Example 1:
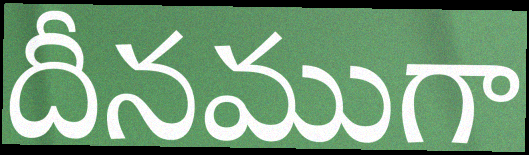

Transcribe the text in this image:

దీనముగా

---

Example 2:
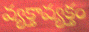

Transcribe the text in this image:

వ్యక్తావ్యక్తం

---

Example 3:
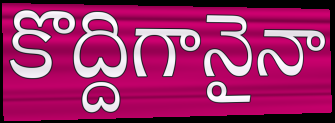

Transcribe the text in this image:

కొద్దిగానైనా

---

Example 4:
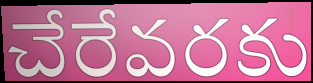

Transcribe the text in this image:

చేరేవరకు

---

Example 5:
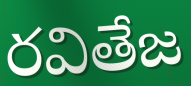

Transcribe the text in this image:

రవితేజ